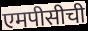
एमपीसीची